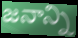
జనాన్ని